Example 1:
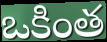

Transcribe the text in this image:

ఒకింత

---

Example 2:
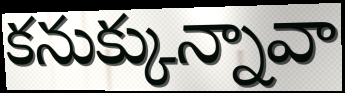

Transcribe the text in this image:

కనుక్కున్నావా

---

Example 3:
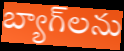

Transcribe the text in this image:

బ్యాగ్‌లను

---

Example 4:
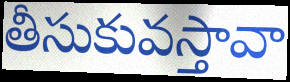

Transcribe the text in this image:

తీసుకువస్తావా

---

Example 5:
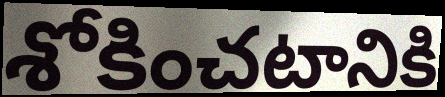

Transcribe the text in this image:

శోకించటానికి